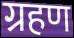
ग्रहण